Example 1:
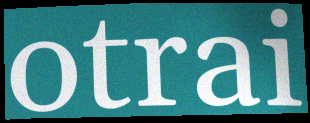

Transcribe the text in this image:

otrai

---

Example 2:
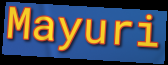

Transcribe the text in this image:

Mayuri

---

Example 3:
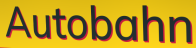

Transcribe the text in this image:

Autobahn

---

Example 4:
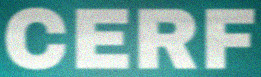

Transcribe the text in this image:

CERF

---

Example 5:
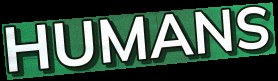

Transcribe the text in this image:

HUMANS